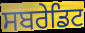
ਸਬਰੇਡਿਟ